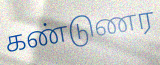
கண்டுணர